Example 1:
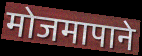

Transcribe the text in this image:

मोजमापाने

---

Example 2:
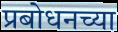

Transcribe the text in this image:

प्रबोधनच्या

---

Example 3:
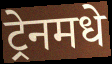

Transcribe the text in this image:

ट्रेनमधे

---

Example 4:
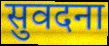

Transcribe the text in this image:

सुवदना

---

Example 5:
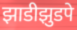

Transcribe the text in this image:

झाडीझुडपे